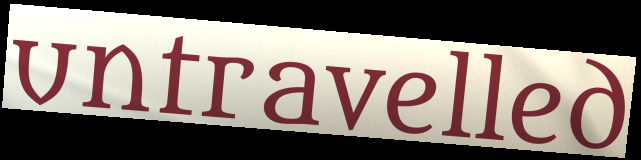
untravelled